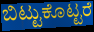
ಬಿಟ್ಟುಕೊಟ್ಟರೆ